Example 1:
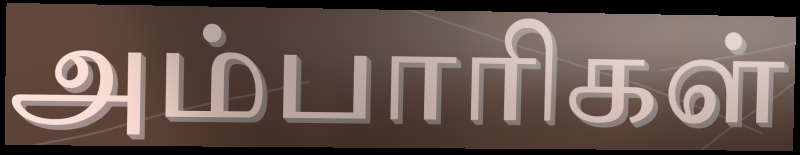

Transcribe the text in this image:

அம்பாரிகள்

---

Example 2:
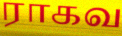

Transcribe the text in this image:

ராகவ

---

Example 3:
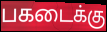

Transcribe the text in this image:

பகடைக்கு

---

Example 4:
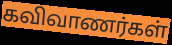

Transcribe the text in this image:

கவிவாணர்கள்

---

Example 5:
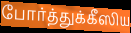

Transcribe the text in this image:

போர்த்துக்கீஸிய